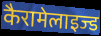
कैरामेलाइज्ड